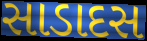
સાડાદસ